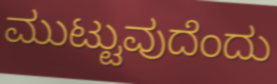
ಮುಟ್ಟುವುದೆಂದು